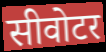
सीवोटर